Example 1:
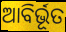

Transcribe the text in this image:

ଆବିର୍ଭୂତ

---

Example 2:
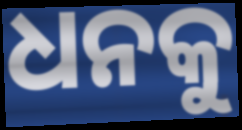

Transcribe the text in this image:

ଧନକୁ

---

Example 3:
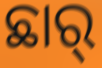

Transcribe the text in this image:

ଛାର୍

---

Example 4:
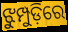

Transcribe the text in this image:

ଝୁମ୍ପୁଡ଼ିରେ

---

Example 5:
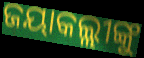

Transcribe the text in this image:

ଜୟାକଲ୍ଲୀଙ୍କୁ